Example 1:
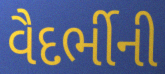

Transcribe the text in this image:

વૈદર્ભીની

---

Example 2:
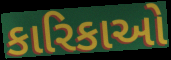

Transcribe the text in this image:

કારિકાઓ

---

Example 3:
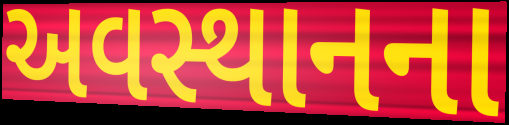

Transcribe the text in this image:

અવસ્થાનના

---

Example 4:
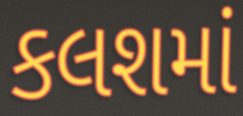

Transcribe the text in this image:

કલશમાં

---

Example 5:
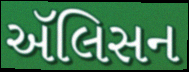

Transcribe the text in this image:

ઍલિસન